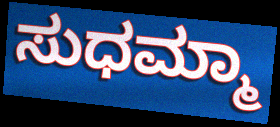
ಸುಧಮ್ಮಾ